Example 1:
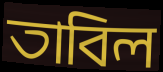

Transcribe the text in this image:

তাবিল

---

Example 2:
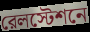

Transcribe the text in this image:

রেলস্টেশনে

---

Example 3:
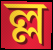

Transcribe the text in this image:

ল্ল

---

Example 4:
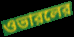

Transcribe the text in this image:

ওভারলের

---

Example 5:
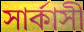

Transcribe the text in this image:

সার্কাসী